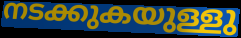
നടക്കുകയുള്ളു